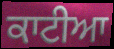
ਕਾਟੀਆ